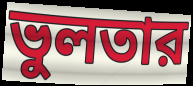
ভুলতার